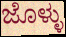
ಜೊಳ್ಳು